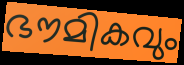
ഭൗമികവും